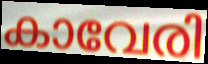
കാവേരി